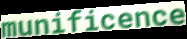
munificence